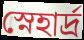
স্নেহার্দ্র